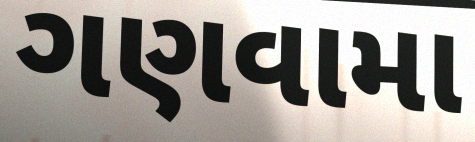
ગણવામા